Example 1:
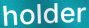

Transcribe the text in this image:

holder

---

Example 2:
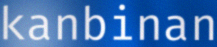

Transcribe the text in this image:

kanbinan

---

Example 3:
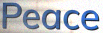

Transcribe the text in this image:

Peace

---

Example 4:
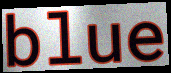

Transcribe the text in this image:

blue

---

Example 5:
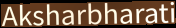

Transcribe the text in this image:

Aksharbharati